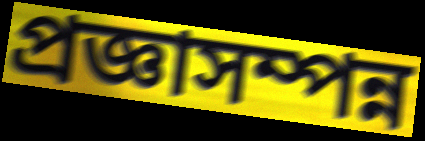
প্রজ্ঞাসম্পন্ন